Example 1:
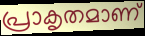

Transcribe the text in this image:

പ്രാകൃതമാണ്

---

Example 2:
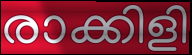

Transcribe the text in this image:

രാക്കിളി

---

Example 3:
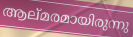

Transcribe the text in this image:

ആല്മരമായിരുന്നു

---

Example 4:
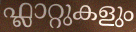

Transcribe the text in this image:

ഫ്ലാറ്റുകളും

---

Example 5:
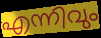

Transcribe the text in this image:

എന്നിവും